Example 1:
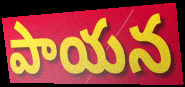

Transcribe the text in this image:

పాయన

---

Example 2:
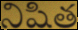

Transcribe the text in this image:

నిషిత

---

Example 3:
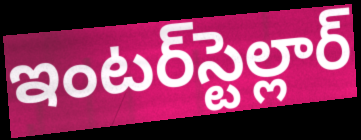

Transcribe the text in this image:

ఇంటర్‌స్టెల్లార్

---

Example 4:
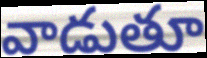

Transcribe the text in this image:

వాడుతూ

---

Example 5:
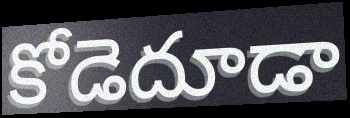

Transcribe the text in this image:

కోడెదూడా